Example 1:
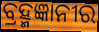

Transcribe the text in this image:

ବ୍ରହ୍ମଜ୍ଞାନୀର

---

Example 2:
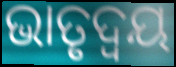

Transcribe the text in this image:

ଭାତୃଦ୍ବୟ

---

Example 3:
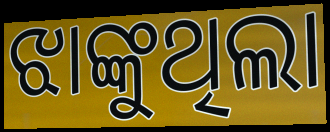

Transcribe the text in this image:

ଝାଙ୍କୁଥିଲା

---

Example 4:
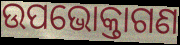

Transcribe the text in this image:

ଉପଭୋକ୍ତାଗଣ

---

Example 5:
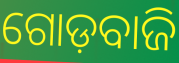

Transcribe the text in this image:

ଗୋଡ଼ବାଜି